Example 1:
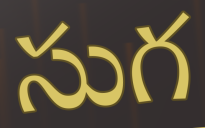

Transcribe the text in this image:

సుగ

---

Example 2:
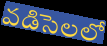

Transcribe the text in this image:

వడిసెలలో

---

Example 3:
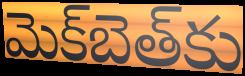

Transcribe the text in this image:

మెక్‌బెత్‌కు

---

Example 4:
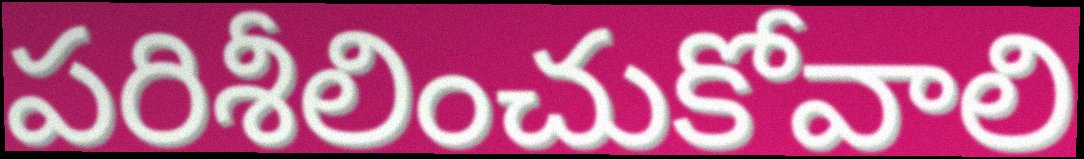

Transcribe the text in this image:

పరిశీలించుకోవాలి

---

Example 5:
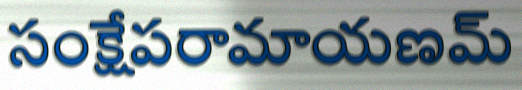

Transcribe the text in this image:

సంక్షేపరామాయణమ్